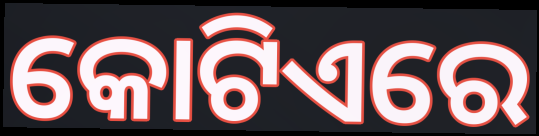
କୋଟିଏରେ